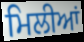
ਮਿਲੀਆਂ